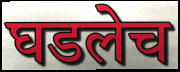
घडलेच